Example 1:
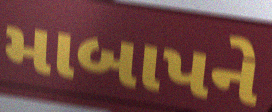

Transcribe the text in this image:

માબાપને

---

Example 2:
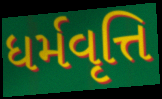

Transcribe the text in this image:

ધર્મવૃત્તિ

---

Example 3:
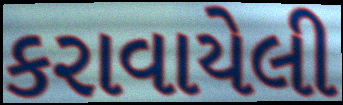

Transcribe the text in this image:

કરાવાયેલી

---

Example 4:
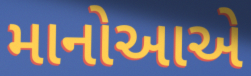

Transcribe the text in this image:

માનોઆએ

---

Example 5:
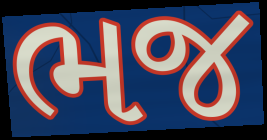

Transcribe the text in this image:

ભજ